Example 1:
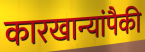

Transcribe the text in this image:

कारखान्यांपैकी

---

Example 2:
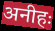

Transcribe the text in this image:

अनीहः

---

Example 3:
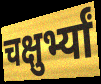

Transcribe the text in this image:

चक्षुर्भ्यां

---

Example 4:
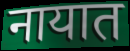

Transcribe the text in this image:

नायात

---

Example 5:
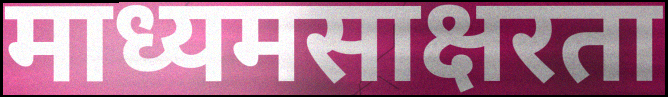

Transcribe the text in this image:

माध्यमसाक्षरता